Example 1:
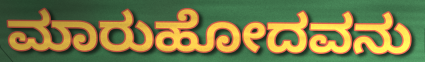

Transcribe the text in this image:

ಮಾರುಹೋದವನು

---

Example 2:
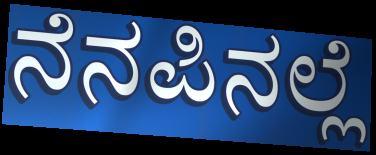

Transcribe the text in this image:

ನೆನಪಿನಲ್ಲೆ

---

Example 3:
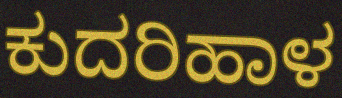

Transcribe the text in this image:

ಕುದರಿಹಾಳ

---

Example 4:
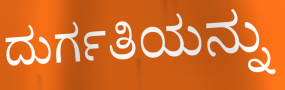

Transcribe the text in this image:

ದುರ್ಗತಿಯನ್ನು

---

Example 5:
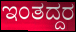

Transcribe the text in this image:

ಇಂತದ್ದರ